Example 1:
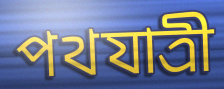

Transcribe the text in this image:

পথযাত্রী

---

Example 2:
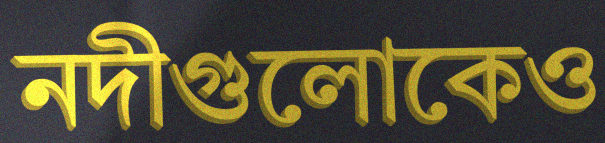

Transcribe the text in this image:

নদীগুলোকেও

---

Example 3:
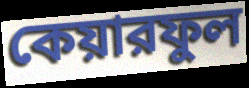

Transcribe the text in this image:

কেয়ারফুল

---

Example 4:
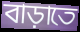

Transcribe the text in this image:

বাড়াতে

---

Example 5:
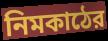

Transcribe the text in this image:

নিমকাঠের